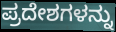
ಪ್ರದೇಶಗಳನ್ನು